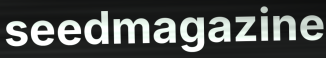
seedmagazine